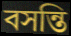
বসন্তি